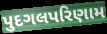
પુદગલપરિણામ